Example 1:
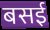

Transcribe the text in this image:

बसई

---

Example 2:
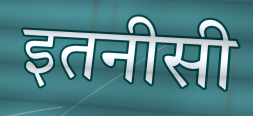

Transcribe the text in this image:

इतनीसी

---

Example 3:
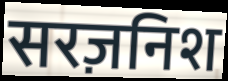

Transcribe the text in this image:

सरज़निश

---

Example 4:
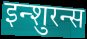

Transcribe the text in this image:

इन्शुरन्स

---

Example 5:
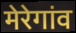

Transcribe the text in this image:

मेरेगांव